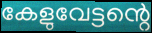
കേളുവേട്ടന്റെ